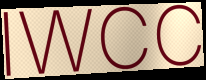
IWCC